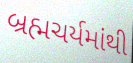
બ્રહ્મચર્યમાંથી